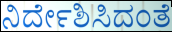
ನಿರ್ದೇಶಿಸಿದಂತೆ